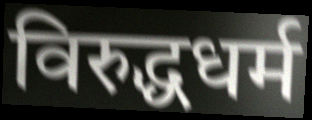
विरुद्धधर्म